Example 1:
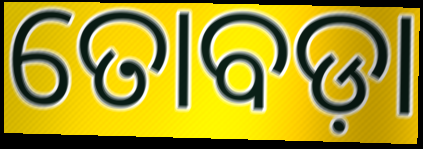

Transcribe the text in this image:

ତୋବଡ଼ା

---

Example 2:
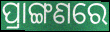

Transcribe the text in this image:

ପ୍ରାଙ୍ଗଣରେ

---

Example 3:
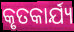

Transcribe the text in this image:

କୃତକାର୍ଯ୍ୟ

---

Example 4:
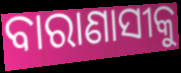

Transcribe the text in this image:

ବାରାଣାସୀକୁ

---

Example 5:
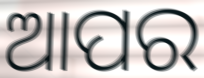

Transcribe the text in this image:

ଆପର